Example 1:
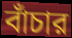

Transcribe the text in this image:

বাঁচার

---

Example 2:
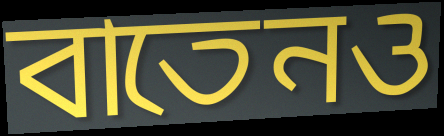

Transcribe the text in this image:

বাতেনও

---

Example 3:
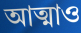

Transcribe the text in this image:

আত্মাও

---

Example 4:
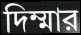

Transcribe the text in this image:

দিম্মার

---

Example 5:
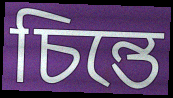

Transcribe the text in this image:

চিন্তে